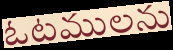
ఓటములను